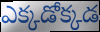
ఎక్కడోక్కడ